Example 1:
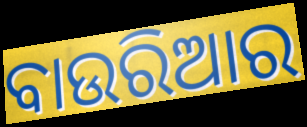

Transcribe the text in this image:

ବାଉରିଆର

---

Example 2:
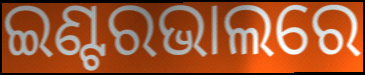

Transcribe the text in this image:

ଇଣ୍ଟରଭାଲରେ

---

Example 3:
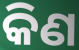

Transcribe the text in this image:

କିଣ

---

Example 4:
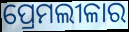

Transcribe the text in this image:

ପ୍ରେମଲୀଳାର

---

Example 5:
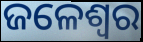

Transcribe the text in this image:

ଜଳେଶ୍ବର